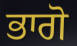
ਭਾਗੋ